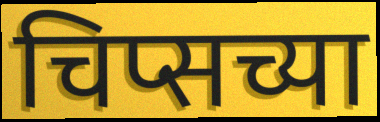
चिप्सच्या